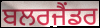
ਬਲਰਜੈਂਡਰ